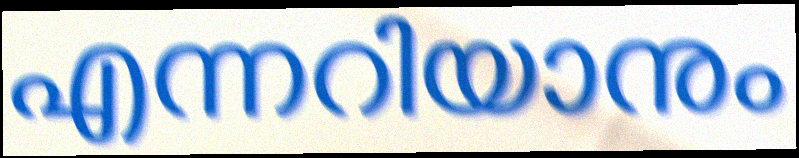
എന്നറിയാനും